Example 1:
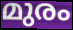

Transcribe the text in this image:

മുരം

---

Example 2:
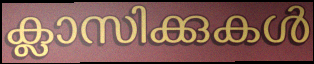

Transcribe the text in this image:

ക്ലാസിക്കുകൾ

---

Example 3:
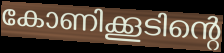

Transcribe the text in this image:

കോണിക്കൂടിന്റെ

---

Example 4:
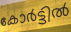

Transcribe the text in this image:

കോർട്ടിൽ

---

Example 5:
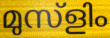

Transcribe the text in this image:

മുസ്ളിം